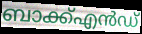
ബാക്ക്എൻഡ്